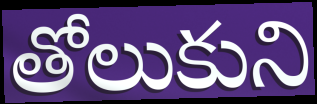
తోలుకుని